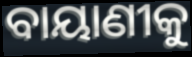
ବାୟାଣୀକୁ